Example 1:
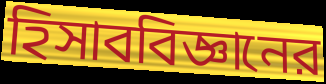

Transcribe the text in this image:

হিসাববিজ্ঞানের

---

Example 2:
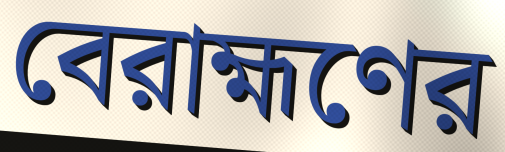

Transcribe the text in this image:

বেরাহ্মণের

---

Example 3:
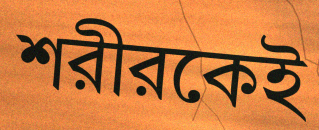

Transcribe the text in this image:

শরীরকেই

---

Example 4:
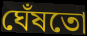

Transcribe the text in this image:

ঘেঁষতো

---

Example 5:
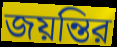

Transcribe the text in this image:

জয়ন্তির